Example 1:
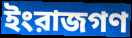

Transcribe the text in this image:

ইংরাজগণ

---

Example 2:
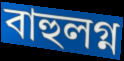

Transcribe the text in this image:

বাহুলগ্ন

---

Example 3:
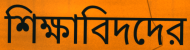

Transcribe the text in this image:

শিক্ষাবিদদের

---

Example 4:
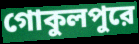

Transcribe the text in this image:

গোকুলপুরে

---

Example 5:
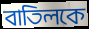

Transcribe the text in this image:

বাতিলকে